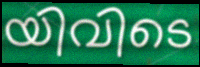
യിവിടെ